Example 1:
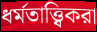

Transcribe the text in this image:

ধর্মতাত্ত্বিকরা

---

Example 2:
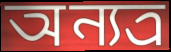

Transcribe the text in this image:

অন্যত্র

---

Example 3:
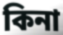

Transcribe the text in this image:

কিনা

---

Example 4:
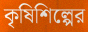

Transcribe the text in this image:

কৃষিশিল্পের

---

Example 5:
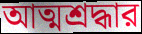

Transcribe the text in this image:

আত্মশ্রদ্ধার